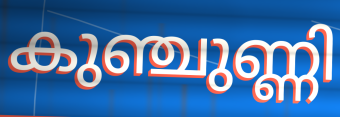
കുഞ്ചുണ്ണി